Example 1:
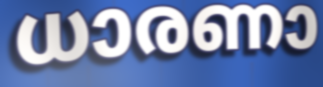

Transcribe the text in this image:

ധാരണാ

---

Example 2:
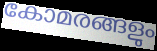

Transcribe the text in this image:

കോമരങ്ങളും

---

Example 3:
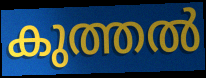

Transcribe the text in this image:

കുത്തൽ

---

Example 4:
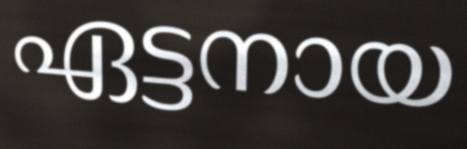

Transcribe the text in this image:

ഏട്ടനായ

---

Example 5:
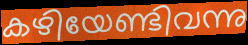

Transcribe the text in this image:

കഴിയേണ്ടിവന്നു